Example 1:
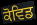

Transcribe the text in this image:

ਕੋਵਿਡ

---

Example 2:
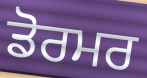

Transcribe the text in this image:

ਡੋਰਮਰ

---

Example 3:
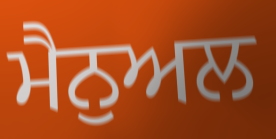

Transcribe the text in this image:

ਮੈਨੁਅਲ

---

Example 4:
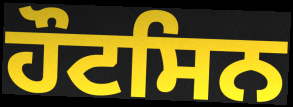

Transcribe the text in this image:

ਹੌਟਸਿਨ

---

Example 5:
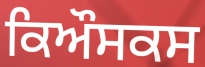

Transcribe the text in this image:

ਕਿਔਸਕਸ